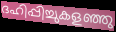
ദഹിപ്പിച്ചുകളഞ്ഞു